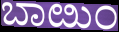
ಬಾೞುಂ